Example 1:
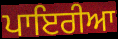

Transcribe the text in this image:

ਪਾਇਰੀਆ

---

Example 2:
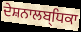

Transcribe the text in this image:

ਦੇਸ਼ਨਾਲਬ੍ਧਿਕਾ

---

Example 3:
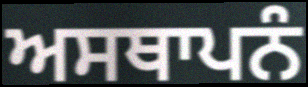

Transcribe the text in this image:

ਅਸਥਾਪਨੰ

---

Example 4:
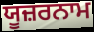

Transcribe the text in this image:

ਯੂਜ਼ਰਨਾਮ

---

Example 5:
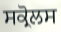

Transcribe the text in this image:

ਸਕ੍ਰੋਲਸ